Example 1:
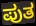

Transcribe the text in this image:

ಪುತ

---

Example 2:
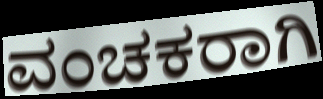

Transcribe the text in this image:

ವಂಚಕರಾಗಿ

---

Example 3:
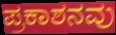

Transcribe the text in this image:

ಪ್ರಕಾಶನವು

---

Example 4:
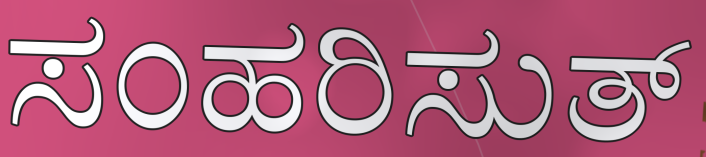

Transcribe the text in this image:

ಸಂಹರಿಸುತ್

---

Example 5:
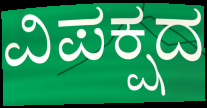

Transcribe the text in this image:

ವಿಪಕ್ಷದ